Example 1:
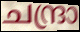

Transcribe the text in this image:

ചന്ദ്രാ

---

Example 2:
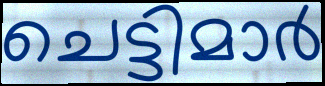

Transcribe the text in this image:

ചെട്ടിമാർ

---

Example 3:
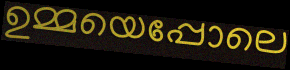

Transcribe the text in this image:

ഉമ്മയെപ്പോലെ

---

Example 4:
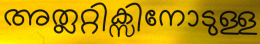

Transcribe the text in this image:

അത്ലറ്റിക്സിനോടുള്ള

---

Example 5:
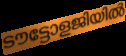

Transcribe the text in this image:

ടൗട്ടോളജിയിൽ